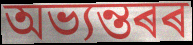
অভ্যন্তৰৰ